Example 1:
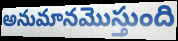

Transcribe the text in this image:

అనుమానమొస్తుంది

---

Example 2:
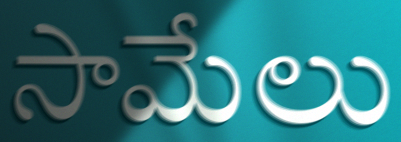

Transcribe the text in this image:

సామేలు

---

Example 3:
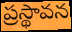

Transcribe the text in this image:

ప్రస్థావన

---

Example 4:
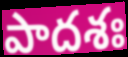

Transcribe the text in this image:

పాదశః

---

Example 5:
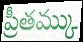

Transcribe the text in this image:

ప్రీతమ్కు